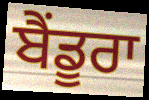
ਬੈਂਡੂਰਾ